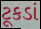
ટૂકડાં